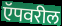
ऍपवरील